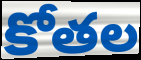
కోతల